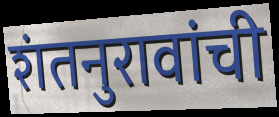
शंतनुरावांची